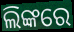
ଲିଙ୍କରେ